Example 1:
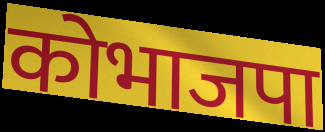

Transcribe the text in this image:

कोभाजपा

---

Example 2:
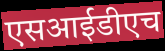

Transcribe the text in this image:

एसआईडीएच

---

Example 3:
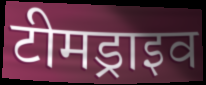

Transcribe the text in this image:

टीमड्राइव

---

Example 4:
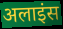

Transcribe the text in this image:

अलाइंस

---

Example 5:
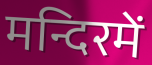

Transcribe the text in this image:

मन्दिरमें